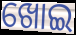
ଖୋଇ